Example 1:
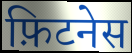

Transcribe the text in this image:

फ़िटनेस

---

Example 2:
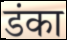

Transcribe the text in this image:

डंका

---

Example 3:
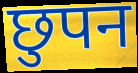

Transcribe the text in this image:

छुपन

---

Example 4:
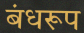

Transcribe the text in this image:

बंधरूप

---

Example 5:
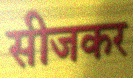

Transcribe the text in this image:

सीजकर